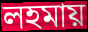
লহমায়